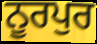
ਨੂਰਪੁਰ